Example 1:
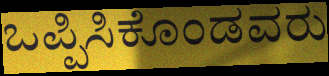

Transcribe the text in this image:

ಒಪ್ಪಿಸಿಕೊಂಡವರು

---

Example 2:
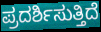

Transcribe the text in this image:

ಪ್ರದರ್ಶಿಸುತ್ತಿದೆ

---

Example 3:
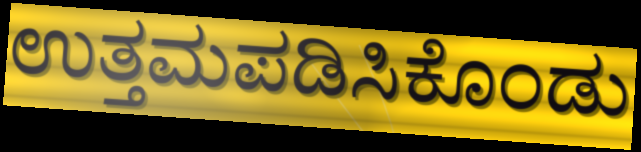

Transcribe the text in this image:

ಉತ್ತಮಪಡಿಸಿಕೊಂಡು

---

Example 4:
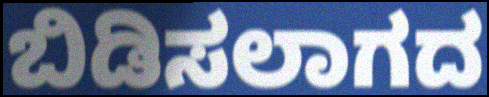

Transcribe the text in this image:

ಬಿಡಿಸಲಾಗದ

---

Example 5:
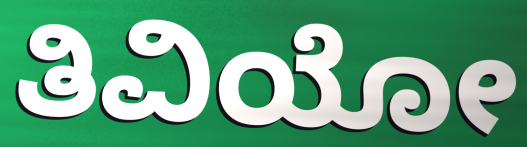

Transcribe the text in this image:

ತಿವಿಯೋ